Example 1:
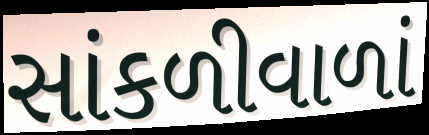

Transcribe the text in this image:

સાંકળીવાળાં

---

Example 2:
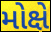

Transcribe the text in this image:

મોક્ષે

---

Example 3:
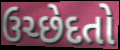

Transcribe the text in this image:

ઉચ્છેદતો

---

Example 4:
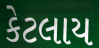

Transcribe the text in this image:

કેટલાય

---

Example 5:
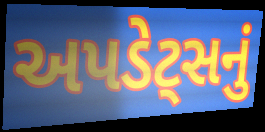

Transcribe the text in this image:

અપડેટ્સનું